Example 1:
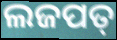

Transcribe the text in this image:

ଲଜପତ୍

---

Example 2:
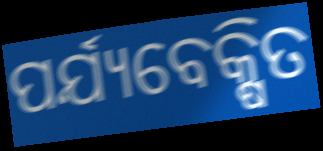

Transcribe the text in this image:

ପର୍ଯ୍ୟବେକ୍ଷିତ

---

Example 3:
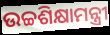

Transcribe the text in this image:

ଉଚ୍ଚଶିକ୍ଷାମନ୍ତ୍ରୀ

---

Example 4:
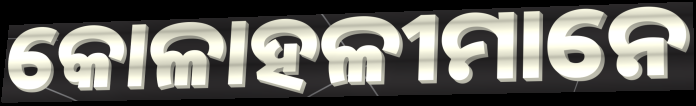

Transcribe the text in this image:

କୋଳାହଳୀମାନେ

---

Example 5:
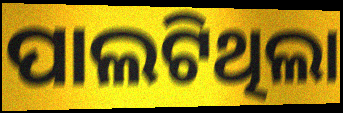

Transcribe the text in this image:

ପାଲଟିଥିଲା